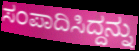
ಸಂಪಾದಿಸಿದ್ದನ್ನು